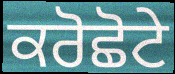
ਕਰੋਛੋਟੇ